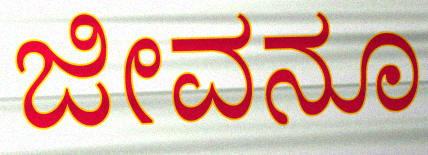
ಜೀವನೂ